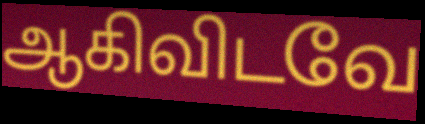
ஆகிவிடவே